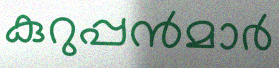
കുറുപ്പൻമാർ